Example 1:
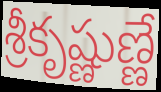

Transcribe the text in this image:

శ్రీకృష్ణుణ్ణే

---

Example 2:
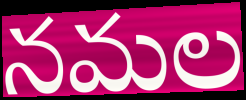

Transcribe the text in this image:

నమల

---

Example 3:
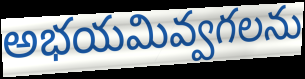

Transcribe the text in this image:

అభయమివ్వగలను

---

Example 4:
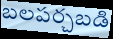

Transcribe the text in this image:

బలపర్చబడి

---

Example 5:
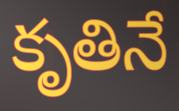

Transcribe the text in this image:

కృతినే